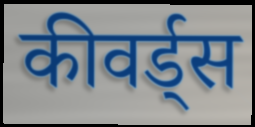
कीवर्ड्स